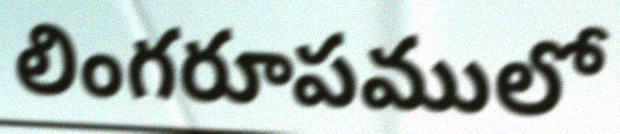
లింగరూపములో